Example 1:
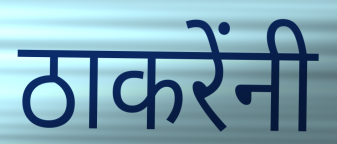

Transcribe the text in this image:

ठाकरेंनी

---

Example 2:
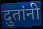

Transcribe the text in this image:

दुतांनी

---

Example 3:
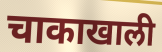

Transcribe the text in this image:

चाकाखाली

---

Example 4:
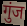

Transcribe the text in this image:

गुंज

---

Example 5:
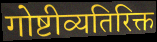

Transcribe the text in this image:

गोष्टीव्यतिरिक्त